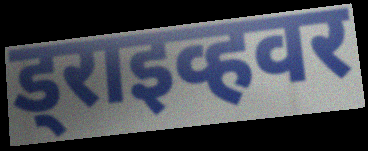
ड्राइव्हवर